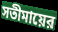
সতীমায়ের